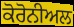
ਕੋਰੋਨੀਅਲ